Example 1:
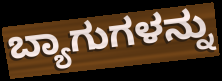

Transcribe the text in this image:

ಬ್ಯಾಗುಗಳನ್ನು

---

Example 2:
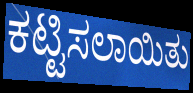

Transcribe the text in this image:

ಕಟ್ಟಿಸಲಾಯಿತು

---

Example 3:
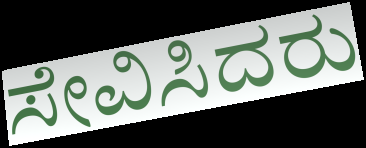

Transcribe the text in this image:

ಸೇವಿಸಿದರು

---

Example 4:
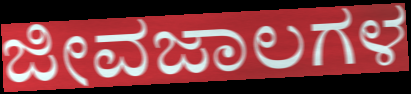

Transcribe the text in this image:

ಜೀವಜಾಲಗಳ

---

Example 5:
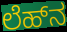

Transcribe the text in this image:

ಲೆಹ್‌ನ